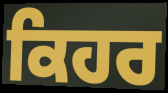
ਕਿਹਰ